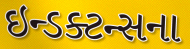
ઇન્ડક્ટન્સના